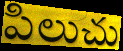
పిలుచు